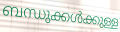
ബന്ധുക്കൾക്കുള്ള